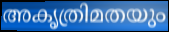
അകൃത്രിമതയും